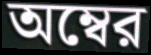
অম্বের